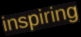
inspiring